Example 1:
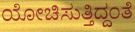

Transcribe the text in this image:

ಯೋಚಿಸುತ್ತಿದ್ದಂತೆ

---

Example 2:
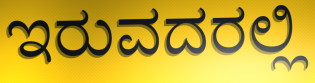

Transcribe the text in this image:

ಇರುವದರಲ್ಲಿ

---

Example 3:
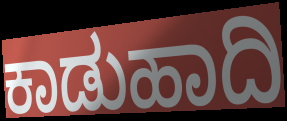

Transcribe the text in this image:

ಕಾಡುಹಾದಿ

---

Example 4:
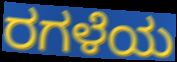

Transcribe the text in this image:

ರಗಳೆಯ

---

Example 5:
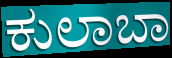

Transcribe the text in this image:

ಕುಲಾಬಾ